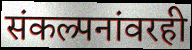
संकल्पनांवरही